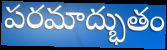
పరమాద్భుతం